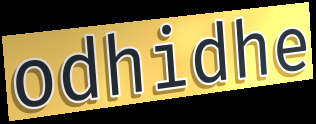
odhidhe